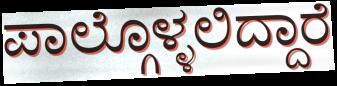
ಪಾಲ್ಗೊಳ್ಳಲಿದ್ದಾರೆ